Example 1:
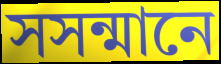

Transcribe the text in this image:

সসন্মানে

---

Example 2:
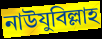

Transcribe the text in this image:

নাউযুবিল্লাহ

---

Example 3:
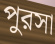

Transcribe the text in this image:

পুরসা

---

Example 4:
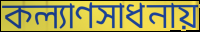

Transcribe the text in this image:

কল্যাণসাধনায়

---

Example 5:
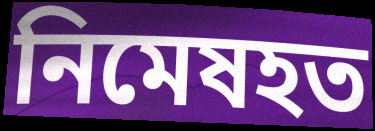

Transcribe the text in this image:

নিমেষহত